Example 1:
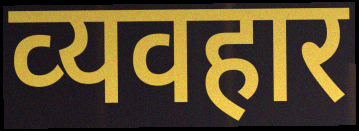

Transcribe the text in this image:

व्‍यवहार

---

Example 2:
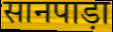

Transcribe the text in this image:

सानपाड़ा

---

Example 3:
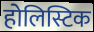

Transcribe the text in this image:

होलिस्टिक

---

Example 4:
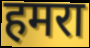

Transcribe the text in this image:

हमरा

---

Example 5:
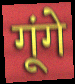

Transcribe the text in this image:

गूंगे